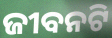
ଜୀବନଟି